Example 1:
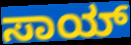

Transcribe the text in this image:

ಸಾಯ್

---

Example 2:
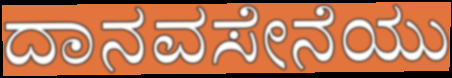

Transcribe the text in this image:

ದಾನವಸೇನೆಯು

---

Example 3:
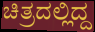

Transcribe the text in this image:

ಚಿತ್ರದಲ್ಲಿದ್ದ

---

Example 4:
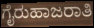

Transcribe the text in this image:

ಗೈರುಹಾಜರಾತಿ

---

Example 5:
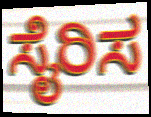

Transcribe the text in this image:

ಸೈರಿಸ